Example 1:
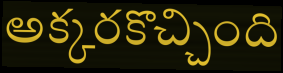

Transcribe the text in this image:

అక్కరకొచ్చింది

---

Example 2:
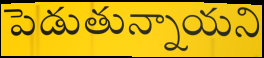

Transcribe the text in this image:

పెడుతున్నాయని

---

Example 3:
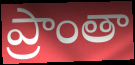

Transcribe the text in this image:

ప్రాంతా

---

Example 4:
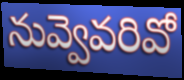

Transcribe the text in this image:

నువ్వెవరివో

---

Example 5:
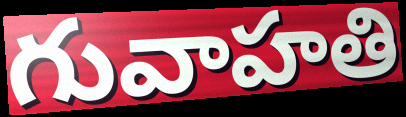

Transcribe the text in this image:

గువాహతి